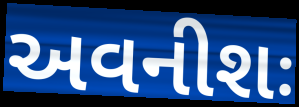
અવનીશઃ